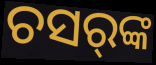
ଚସର୍‌ଙ୍କ